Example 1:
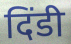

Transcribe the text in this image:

दिंडी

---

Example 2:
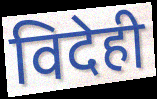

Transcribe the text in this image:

विदेही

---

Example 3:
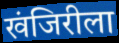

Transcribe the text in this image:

खंजिरीला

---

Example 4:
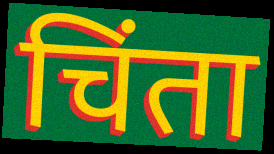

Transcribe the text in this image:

चिंता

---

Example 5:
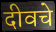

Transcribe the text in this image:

दीवचे